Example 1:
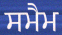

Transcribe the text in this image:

ਸਮੈਮ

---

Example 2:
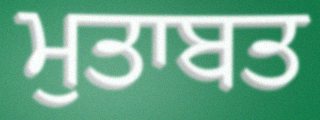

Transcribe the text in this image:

ਮੁਤਾਬਤ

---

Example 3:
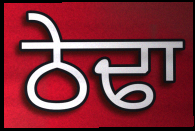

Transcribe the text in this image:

ਠੇਢਾ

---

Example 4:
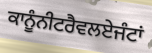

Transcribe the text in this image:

ਕਾਨੂੰਨੀਟਰੈਵਲਏਜੰਟਾਂ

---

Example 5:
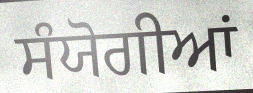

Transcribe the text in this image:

ਸੰਯੋਗੀਆਂ